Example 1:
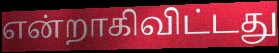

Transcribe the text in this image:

என்றாகிவிட்டது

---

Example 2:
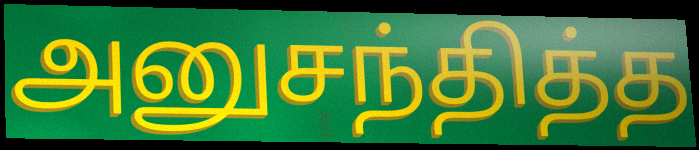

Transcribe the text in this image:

அனுசந்தித்த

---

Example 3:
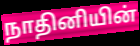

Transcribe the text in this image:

நாதினியின்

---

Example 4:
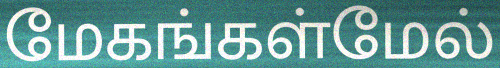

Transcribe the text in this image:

மேகங்கள்மேல்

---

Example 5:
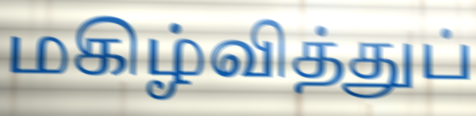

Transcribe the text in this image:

மகிழ்வித்துப்